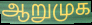
ஆறுமுக